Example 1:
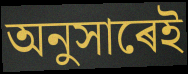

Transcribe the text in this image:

অনুসাৰেই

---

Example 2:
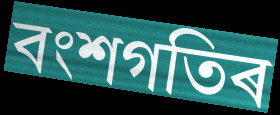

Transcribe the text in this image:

বংশগতিৰ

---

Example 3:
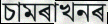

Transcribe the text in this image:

চামৰাখনৰ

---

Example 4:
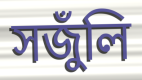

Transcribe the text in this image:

সজুঁলি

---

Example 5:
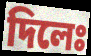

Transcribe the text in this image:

দিলেঃ